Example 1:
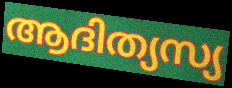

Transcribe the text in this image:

ആദിത്യസ്യ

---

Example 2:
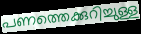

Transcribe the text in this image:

പണത്തെക്കുറിച്ചുള്ള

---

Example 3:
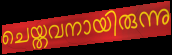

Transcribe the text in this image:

ചെയ്തവനായിരുന്നു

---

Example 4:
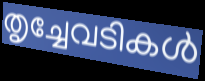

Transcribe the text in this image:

തൃച്ചേവടികൾ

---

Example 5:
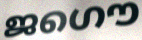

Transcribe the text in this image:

ജഗൌ